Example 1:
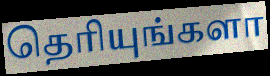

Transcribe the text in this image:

தெரியுங்களா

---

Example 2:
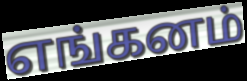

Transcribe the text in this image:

எங்கனம்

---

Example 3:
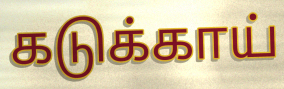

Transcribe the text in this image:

கடுக்காய்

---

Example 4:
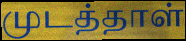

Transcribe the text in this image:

முடத்தாள்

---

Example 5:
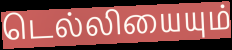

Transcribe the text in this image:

டெல்லியையும்